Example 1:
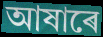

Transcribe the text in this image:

আষাৰে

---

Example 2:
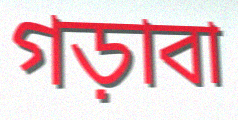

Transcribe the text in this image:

গড়াবা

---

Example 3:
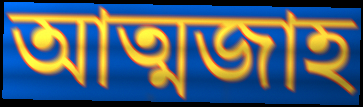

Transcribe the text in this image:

আত্মজাহ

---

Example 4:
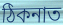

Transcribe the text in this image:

ঠিকনাত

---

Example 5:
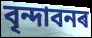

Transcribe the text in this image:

বৃন্দাবনৰ